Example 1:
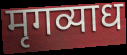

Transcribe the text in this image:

मृगव्याध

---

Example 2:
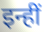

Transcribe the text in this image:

इन्हीं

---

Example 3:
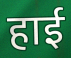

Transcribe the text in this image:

हाई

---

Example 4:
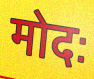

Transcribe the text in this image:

मोदः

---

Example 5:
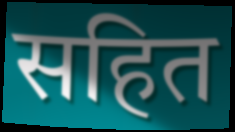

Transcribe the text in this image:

सहित